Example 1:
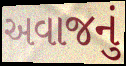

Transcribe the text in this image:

અવાજનું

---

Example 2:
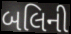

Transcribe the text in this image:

બલિની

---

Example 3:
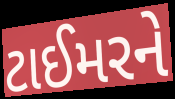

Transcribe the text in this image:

ટાઈમરને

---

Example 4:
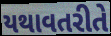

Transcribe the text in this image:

યથાવતરીતે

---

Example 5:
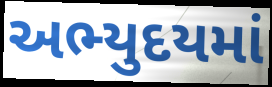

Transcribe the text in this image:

અભ્યુદયમાં